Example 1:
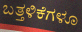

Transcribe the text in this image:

ಬತ್ತಳಿಕೆಗಳೂ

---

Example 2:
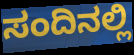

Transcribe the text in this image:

ಸಂದಿನಲ್ಲಿ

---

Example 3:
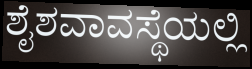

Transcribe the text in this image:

ಶೈಶವಾವಸ್ಥೆಯಲ್ಲಿ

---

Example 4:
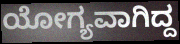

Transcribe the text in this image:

ಯೋಗ್ಯವಾಗಿದ್ದ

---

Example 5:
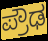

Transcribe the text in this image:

ಪ್ರೌಢ